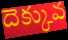
దెక్కువ